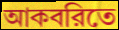
আকবরিতে